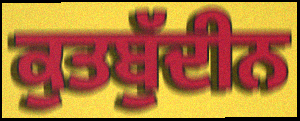
ਕੁਤਬੁੱਦੀਨ